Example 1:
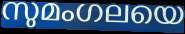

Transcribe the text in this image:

സുമംഗലയെ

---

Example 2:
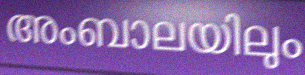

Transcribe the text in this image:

അംബാലയിലും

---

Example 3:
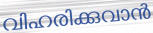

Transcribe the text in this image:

വിഹരിക്കുവാൻ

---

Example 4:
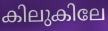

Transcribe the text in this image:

കിലുകിലേ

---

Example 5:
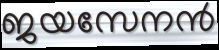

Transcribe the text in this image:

ജയസേനൻ